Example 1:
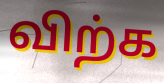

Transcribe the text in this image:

விற்க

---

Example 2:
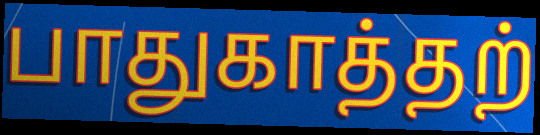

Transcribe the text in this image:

பாதுகாத்தற்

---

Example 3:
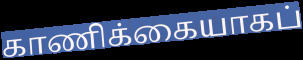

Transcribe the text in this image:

காணிக்கையாகப்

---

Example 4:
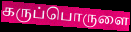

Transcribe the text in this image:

கருப்பொருளை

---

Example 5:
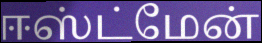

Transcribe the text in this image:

ஈஸ்ட்மேன்